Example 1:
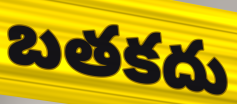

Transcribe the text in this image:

బతకదు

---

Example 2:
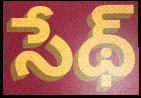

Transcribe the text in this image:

సేథ్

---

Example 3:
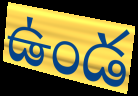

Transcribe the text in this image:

ఉండ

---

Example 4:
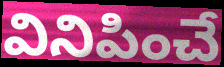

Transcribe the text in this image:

వినిపించే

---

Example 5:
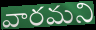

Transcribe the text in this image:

వారమని